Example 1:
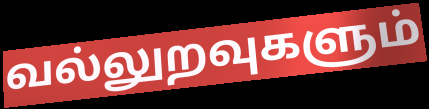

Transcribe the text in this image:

வல்லுறவுகளும்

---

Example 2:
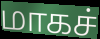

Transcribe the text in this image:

மாகச்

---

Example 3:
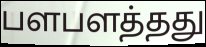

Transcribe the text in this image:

பளபளத்தது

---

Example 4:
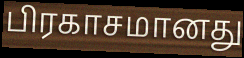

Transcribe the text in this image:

பிரகாசமானது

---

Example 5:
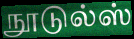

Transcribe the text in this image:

நூடுல்ஸ்